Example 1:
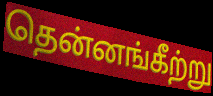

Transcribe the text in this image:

தென்னங்கீற்று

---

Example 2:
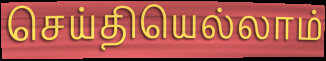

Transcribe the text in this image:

செய்தியெல்லாம்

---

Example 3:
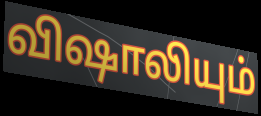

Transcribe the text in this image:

விஷாலியும்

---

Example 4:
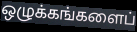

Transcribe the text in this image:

ஒழுக்கங்களைப்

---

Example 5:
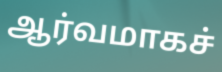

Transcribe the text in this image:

ஆர்வமாகச்